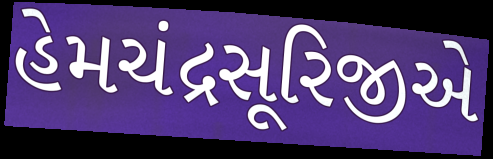
હેમચંદ્રસૂરિજીએ